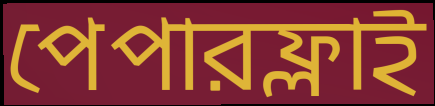
পেপারফ্লাই